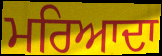
ਮਰਿਆਦਾ